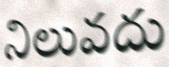
నిలువదు